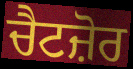
ਚੈਟਜ਼ੋਰ